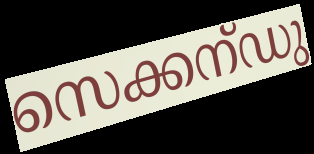
സെക്കന്ഡു